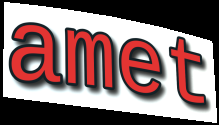
amet